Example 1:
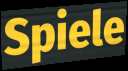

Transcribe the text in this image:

Spiele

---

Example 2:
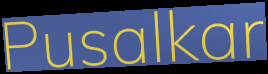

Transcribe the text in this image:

Pusalkar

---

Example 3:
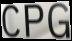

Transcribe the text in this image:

CPG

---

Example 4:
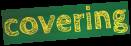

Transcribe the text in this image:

covering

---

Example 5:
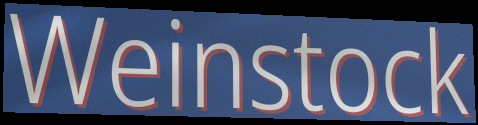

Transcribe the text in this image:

Weinstock